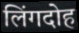
लिंगदोह